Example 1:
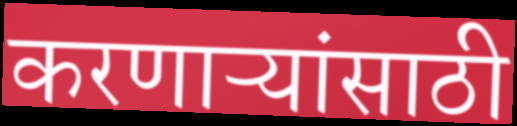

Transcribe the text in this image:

करणाऱ्यांसाठी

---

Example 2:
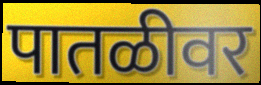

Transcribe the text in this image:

पातळीवर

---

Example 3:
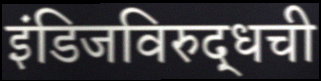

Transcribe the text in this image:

इंडिजविरुद्धची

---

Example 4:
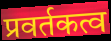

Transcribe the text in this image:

प्रवर्तकत्व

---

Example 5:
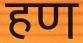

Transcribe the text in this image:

हण